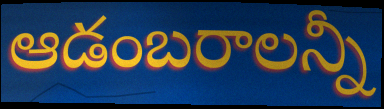
ఆడంబరాలన్నీ